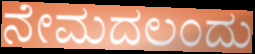
ನೇಮದಲಂದು